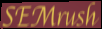
SEMrush